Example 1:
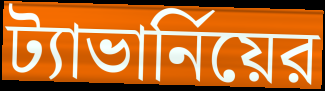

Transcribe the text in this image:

ট্যাভার্নিয়ের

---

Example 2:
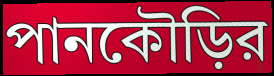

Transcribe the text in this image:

পানকৌড়ির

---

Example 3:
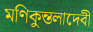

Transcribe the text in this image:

মণিকুন্তলাদেবী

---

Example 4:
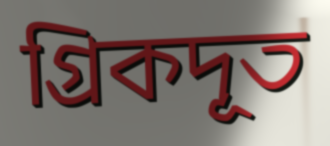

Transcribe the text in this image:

গ্রিকদূত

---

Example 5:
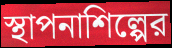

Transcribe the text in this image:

স্থাপনাশিল্পের